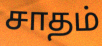
சாதம்